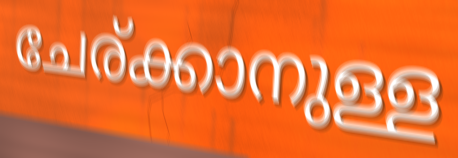
ചേര്ക്കാനുള്ള